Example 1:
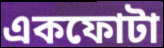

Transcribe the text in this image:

একফোটা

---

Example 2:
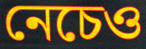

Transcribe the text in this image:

নেচেও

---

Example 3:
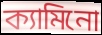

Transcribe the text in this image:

ক্যামিনো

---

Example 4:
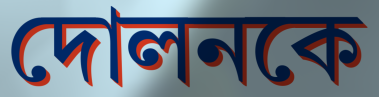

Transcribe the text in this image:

দোলনকে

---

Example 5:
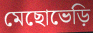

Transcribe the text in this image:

মেছোভেড়ি